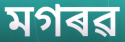
মগৰৱ